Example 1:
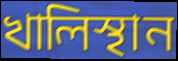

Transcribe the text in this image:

খালিস্থান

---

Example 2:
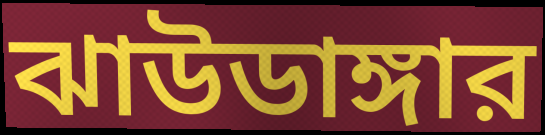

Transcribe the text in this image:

ঝাউডাঙ্গার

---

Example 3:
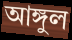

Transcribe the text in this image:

আঙ্গুল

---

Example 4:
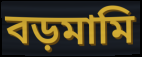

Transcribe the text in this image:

বড়মামি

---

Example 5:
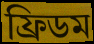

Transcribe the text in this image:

ফ্রিডম